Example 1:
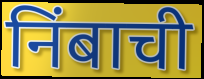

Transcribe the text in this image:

निंबाची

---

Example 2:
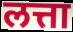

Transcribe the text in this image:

लत्ता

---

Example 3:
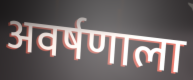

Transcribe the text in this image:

अवर्षणाला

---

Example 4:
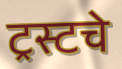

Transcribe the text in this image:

ट्रस्टचे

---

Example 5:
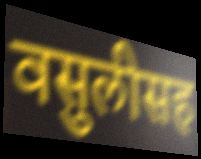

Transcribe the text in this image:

वसुलीसह